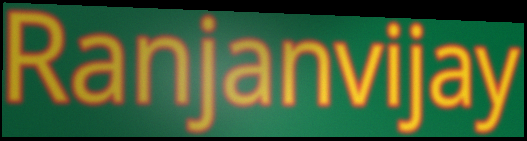
Ranjanvijay